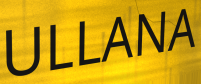
ULLANA